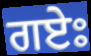
ਗਏਃ